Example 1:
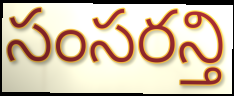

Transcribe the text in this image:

సంసరన్తి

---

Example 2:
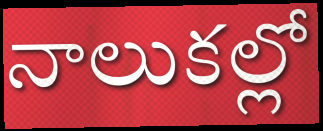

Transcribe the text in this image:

నాలుకల్లో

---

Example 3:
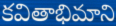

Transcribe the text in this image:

కవితాభిమాని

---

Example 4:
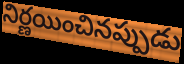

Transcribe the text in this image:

నిర్ణయించినప్పుడు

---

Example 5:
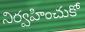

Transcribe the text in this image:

నిర్వహించుకో